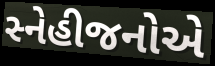
સ્નેહીજનોએ